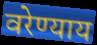
वरेण्याय